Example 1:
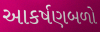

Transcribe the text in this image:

આકર્ષણબળો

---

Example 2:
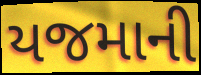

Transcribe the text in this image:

યજમાની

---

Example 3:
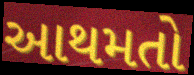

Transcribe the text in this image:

આથમતો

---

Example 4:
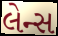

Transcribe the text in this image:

લેન્સ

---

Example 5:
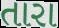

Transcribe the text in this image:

તારા